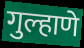
गुल्हाणे